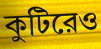
কুটিরেও